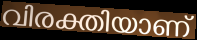
വിരക്തിയാണ്